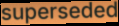
superseded